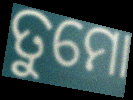
ତୁମୋ